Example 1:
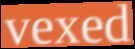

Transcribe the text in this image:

vexed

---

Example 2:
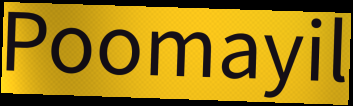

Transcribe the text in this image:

Poomayil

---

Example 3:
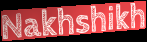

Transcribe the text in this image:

Nakhshikh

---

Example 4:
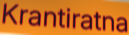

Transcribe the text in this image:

Krantiratna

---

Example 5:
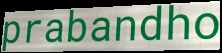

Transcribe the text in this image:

prabandho